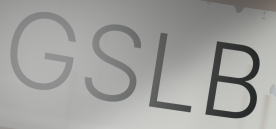
GSLB